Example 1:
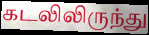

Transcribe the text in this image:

கடலிலிருந்து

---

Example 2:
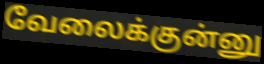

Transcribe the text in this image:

வேலைக்குன்னு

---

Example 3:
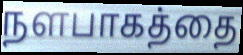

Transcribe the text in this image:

நளபாகத்தை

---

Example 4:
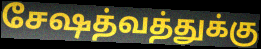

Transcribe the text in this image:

சேஷத்வத்துக்கு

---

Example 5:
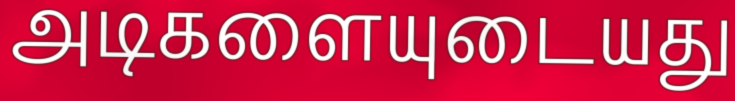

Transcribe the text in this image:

அடிகளையுடையது